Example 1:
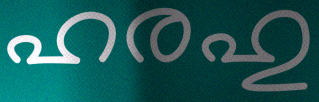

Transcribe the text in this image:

ഹരഹു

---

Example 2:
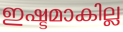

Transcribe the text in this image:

ഇഷ്ടമാകില്ല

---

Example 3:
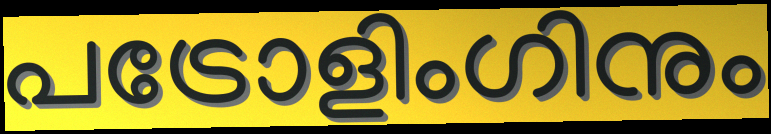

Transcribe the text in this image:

പട്രോളിംഗിനും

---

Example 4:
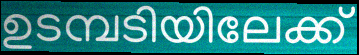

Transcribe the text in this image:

ഉടമ്പടിയിലേക്ക്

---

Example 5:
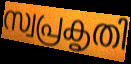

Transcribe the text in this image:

സ്വപ്രകൃതി